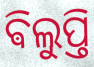
ଵିଲୁପ୍ତି